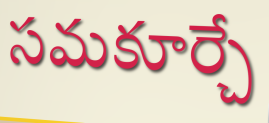
సమకూర్చే